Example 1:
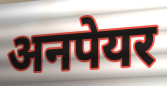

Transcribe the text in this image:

अनपेयर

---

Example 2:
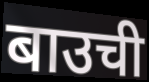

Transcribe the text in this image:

बाउची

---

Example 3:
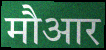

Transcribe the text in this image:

मौआर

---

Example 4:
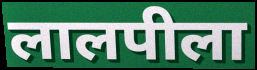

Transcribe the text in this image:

लालपीला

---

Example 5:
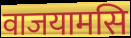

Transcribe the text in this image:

वाजयामसि